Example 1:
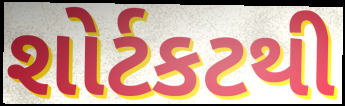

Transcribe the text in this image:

શોર્ટકટથી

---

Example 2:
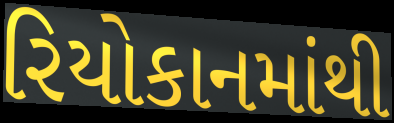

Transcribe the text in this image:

રિયોકાનમાંથી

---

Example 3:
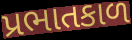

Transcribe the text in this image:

પ્રભાતકાળ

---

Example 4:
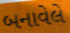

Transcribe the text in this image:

બનાવેલે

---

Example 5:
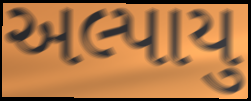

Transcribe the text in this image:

અલ્પાયુ